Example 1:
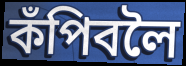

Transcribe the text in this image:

কঁপিবলৈ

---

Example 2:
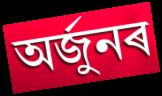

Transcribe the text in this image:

অৰ্জুনৰ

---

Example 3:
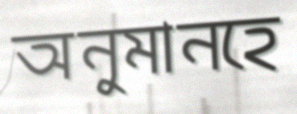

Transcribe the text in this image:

অনুমানহে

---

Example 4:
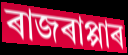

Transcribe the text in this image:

ৰাজৰাপ্পাৰ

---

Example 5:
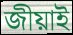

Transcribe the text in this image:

জীয়াই